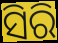
ସିରି